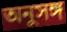
অনুসঙ্গ